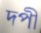
দপী